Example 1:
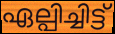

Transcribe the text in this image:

ഏല്പിച്ചിട്ട്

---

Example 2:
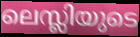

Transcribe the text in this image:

ലെസ്ലിയുടെ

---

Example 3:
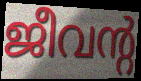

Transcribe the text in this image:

ജീവന്റ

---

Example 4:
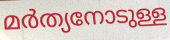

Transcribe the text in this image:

മർത്യനോടുള്ള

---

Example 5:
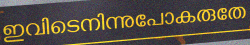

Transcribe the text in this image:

ഇവിടെനിന്നുപോകരുതേ